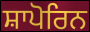
ਸ਼ਾਪੋਰਿਨ